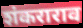
शंकराराव